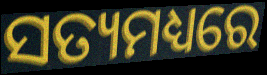
ସତ୍ୟମଧ୍ୟରେ